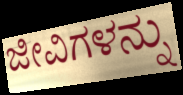
ಜೀವಿಗಳನ್ನು